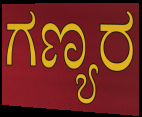
ಗಣ್ಯರ